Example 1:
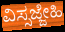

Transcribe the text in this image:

ವಿಸ್ಸಜ್ಜೇಹಿ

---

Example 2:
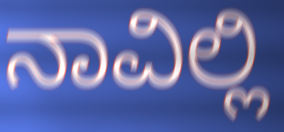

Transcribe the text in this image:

ನಾವಿಲ್ಲಿ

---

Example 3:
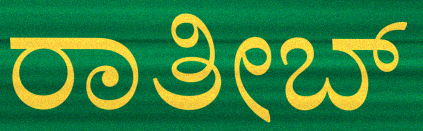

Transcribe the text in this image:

ರಾತೀಬ್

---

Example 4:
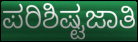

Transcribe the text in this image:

ಪರಿಶಿಷ್ಟಜಾತಿ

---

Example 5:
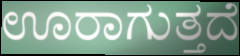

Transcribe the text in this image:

ಊರಾಗುತ್ತದೆ